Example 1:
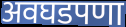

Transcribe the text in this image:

अवघडपणा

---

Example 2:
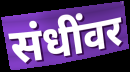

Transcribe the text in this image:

संधींवर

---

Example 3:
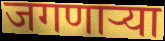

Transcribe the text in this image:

जगणाऱ्या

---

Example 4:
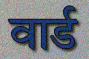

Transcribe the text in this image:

वार्ड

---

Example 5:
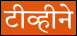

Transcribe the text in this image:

टीव्हीने